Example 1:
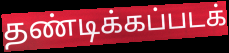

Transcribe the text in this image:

தண்டிக்கப்படக்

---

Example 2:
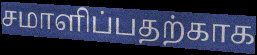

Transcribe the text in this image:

சமாளிப்பதற்காக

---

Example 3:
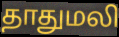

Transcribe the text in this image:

தாதுமலி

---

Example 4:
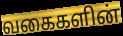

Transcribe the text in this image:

வகைகளின்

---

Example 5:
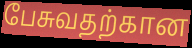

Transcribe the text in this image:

பேசுவதற்கான